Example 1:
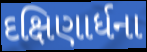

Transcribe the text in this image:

દક્ષિણાર્ધના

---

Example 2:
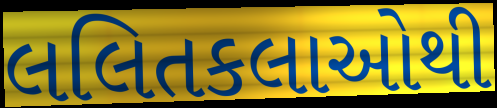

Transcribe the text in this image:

લલિતકલાઓથી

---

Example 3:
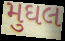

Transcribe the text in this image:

મુઘલ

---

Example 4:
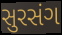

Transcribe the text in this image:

સુરસંગ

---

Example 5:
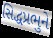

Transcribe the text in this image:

સિદ્ધપ્રભુને